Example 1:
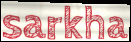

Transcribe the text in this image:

sarkha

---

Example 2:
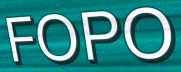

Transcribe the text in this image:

FOPO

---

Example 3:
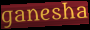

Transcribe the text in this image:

ganesha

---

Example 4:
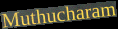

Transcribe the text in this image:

Muthucharam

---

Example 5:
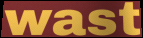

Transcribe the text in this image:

wast